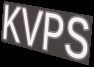
KVPS